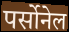
पर्सोनेल